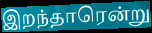
இறந்தாரென்று